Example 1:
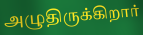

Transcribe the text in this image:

அழுதிருக்கிறார்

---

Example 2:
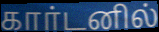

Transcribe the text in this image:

கார்டனில்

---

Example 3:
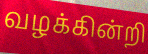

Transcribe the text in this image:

வழக்கின்றி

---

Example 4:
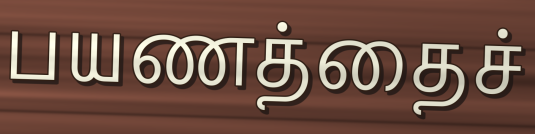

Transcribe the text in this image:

பயணத்தைச்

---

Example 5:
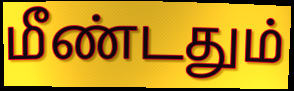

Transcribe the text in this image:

மீண்டதும்